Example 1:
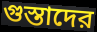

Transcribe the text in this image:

গুস্তাদের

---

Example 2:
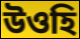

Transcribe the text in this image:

উওহি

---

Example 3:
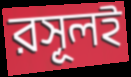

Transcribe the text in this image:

রসূলই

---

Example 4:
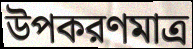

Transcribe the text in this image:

উপকরণমাত্র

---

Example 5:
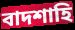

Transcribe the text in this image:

বাদশাহি